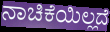
ನಾಚಿಕೆಯಿಲ್ಲದೆ